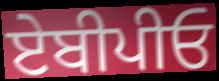
ਏਬੀਪੀਓ